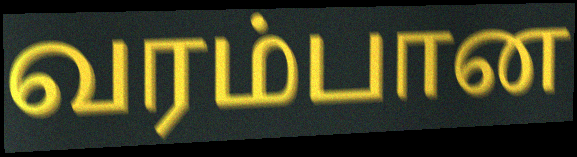
வரம்பான